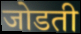
जोडती